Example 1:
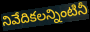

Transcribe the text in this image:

నివేదికలన్నింటినీ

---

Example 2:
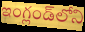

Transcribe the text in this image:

ఇంగ్లండ్‌లోని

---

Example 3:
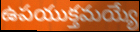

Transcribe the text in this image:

ఉపయుక్తమయ్యే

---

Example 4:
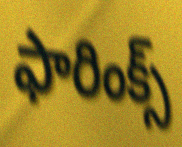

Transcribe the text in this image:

ఫారింక్స్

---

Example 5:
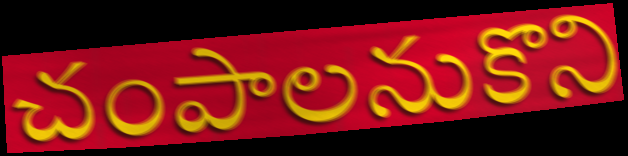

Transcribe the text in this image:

చంపాలనుకొని